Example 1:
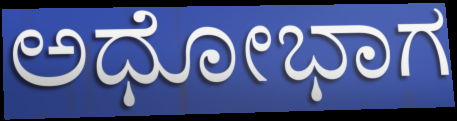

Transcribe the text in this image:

ಅಧೋಭಾಗ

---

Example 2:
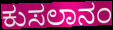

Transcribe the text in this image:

ಕುಸಲಾನಂ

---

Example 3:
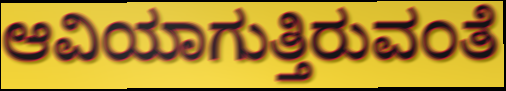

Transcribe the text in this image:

ಆವಿಯಾಗುತ್ತಿರುವಂತೆ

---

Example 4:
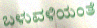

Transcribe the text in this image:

ಬಳುವಳಿಯಂತೆ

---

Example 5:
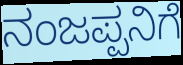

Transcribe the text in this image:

ನಂಜಪ್ಪನಿಗೆ